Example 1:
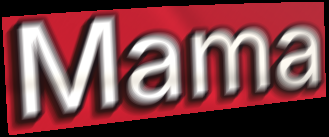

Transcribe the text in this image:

Mama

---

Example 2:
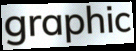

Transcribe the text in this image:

graphic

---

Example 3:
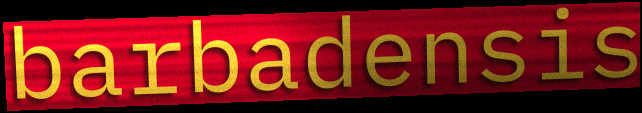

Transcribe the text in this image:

barbadensis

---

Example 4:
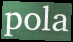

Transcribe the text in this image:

pola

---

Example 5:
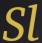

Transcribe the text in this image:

Sl